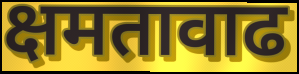
क्षमतावाढ